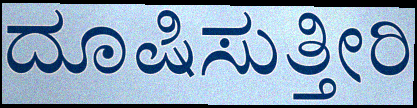
ದೂಷಿಸುತ್ತೀರಿ